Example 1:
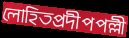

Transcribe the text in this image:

লোহিতপ্রদীপপল্লী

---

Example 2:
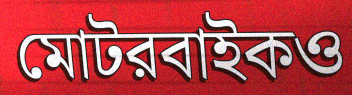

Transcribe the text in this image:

মোটরবাইকও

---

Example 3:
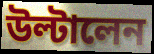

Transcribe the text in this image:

উল্টালেন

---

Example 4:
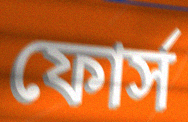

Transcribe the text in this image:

ফোর্স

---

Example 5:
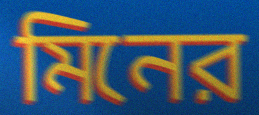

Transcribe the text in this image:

মিনের